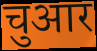
चुआर